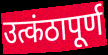
उत्कंठापूर्ण